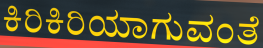
ಕಿರಿಕಿರಿಯಾಗುವಂತೆ